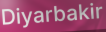
Diyarbakir